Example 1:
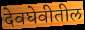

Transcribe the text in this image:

देवघेवीतील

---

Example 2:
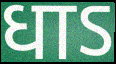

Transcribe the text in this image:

धाऽ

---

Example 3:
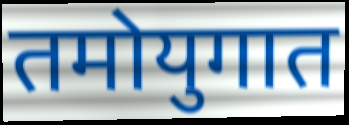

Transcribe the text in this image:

तमोयुगात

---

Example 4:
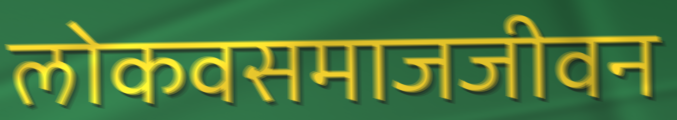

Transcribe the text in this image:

लोकवसमाजजीवन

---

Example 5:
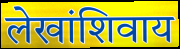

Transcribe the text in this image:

लेखांशिवाय